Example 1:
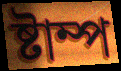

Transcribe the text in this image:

ষ্টাম্প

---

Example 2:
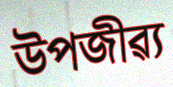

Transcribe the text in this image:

উপজীৱ্য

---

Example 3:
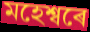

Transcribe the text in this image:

মহেশ্বৰে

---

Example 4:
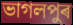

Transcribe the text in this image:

ভাগলপুৰ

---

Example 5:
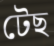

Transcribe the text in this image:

টেছ